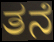
ತನೆ